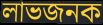
লাভজনক